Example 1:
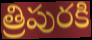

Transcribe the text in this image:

త్రిపురకి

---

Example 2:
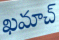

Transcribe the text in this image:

ఖమాచ్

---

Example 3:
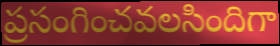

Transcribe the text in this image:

ప్రసంగించవలసిందిగా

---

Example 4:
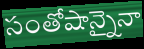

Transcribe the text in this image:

సంతోషాన్నైనా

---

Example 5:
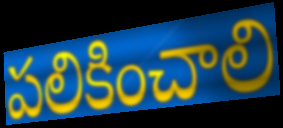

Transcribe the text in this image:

పలికించాలి